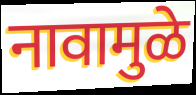
नावामुळे